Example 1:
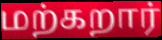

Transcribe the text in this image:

மற்கறார்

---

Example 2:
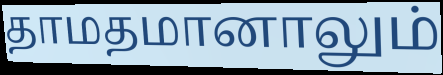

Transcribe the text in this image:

தாமதமானாலும்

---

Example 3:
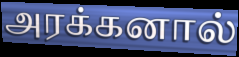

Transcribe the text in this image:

அரக்கனால்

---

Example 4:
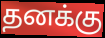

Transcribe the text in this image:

தனக்கு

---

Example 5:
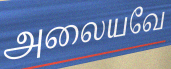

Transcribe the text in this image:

அலையவே